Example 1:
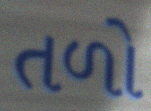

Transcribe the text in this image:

તળો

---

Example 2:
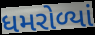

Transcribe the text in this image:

ધમરોળ્યાં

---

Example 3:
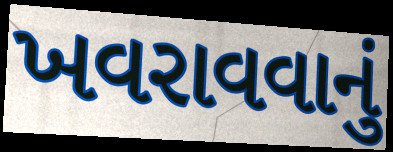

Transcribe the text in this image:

ખવરાવવાનું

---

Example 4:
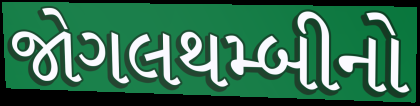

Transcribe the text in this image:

જોગલથમ્બીનો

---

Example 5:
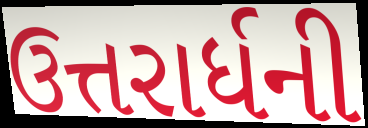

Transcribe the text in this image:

ઉત્તરાર્ધની